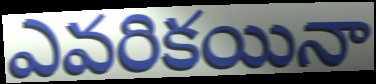
ఎవరికయినా